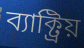
ব্যাক্ট্রিয়